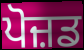
ਪੋਜ਼ਡ